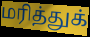
மரித்துக்